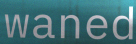
waned